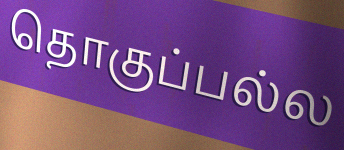
தொகுப்பல்ல